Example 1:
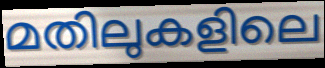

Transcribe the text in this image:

മതിലുകളിലെ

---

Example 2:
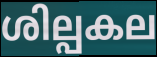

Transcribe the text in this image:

ശില്പകല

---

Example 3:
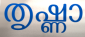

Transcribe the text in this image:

തൃഷ്ണാ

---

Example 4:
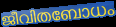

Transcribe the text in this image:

ജീവിതബോധം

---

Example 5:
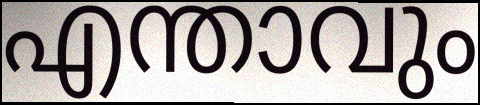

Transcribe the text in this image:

എന്താവും